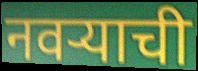
नवर्‍याची